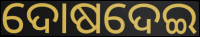
ଦୋଷଦେଇ